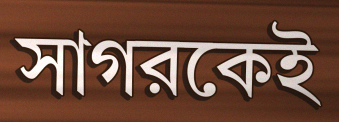
সাগরকেই